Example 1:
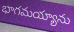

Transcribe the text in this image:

భాగమయ్యాను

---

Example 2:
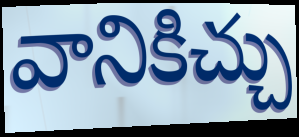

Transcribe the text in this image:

వానికిచ్చు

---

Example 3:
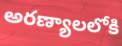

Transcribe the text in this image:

అరణ్యాలలోకి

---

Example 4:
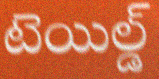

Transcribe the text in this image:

టెయిల్డ్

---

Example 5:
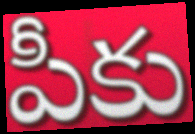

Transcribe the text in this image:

పీకు